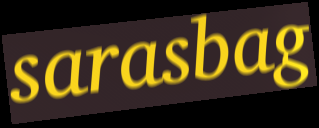
sarasbag